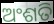
ଅଂଶତି